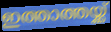
ഇത്താത്തയ്ക്ക്